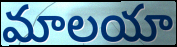
మాలయా